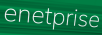
enetprise